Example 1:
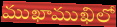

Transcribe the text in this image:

ముఖాముఖిలో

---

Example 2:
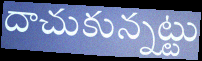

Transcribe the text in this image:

దాచుకున్నట్టు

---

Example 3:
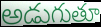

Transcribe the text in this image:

అడుగుతూ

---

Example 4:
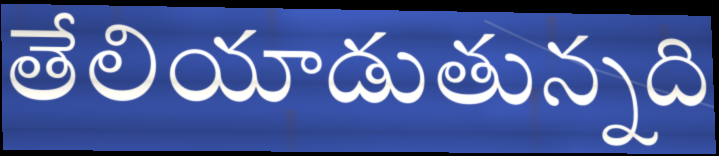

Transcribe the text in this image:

తేలియాడుతున్నది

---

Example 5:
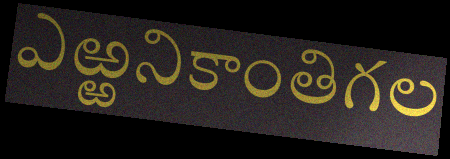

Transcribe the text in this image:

ఎఱ్ఱనికాంతిగల